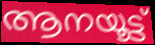
ആനയൂട്ട്